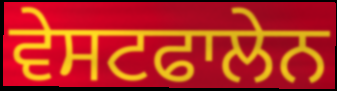
ਵੇਸਟਫਾਲੇਨ